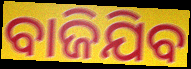
ବାଜିଯିବ